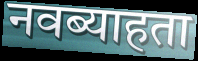
नवब्याहता